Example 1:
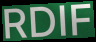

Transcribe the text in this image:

RDIF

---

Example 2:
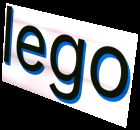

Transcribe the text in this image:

lego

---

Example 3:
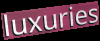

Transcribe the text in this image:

luxuries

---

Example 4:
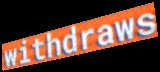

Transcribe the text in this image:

withdraws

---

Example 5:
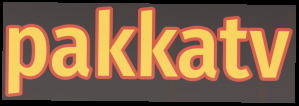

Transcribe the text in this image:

pakkatv